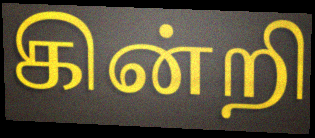
கின்றி